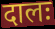
दालः